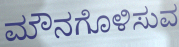
ಮೌನಗೊಳಿಸುವ